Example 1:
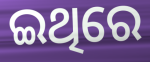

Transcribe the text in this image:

ଇଥିରେ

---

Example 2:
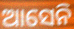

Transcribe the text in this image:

ଆସେନି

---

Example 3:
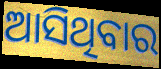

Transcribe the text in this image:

ଆସିଥିବାର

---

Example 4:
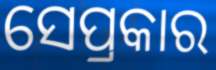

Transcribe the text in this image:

ସେପ୍ରକାର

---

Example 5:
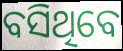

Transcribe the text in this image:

ବସିଥିବେ